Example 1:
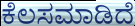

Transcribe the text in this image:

ಕೆಲಸಮಾಡಿದೆ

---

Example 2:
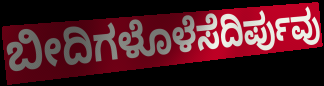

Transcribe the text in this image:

ಬೀದಿಗಳೊಳೆಸೆದಿರ್ಪುವು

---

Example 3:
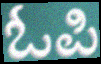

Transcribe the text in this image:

ಓಪಿ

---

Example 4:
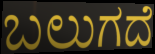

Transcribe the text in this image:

ಬಲುಗದೆ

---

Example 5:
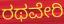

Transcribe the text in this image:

ರಥವೇರಿ